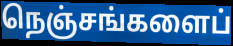
நெஞ்சங்களைப்